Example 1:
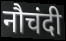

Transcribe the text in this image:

नौचंदी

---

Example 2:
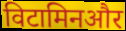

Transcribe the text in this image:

विटामिनऔर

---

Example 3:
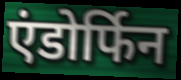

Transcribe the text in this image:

एंडोर्फिन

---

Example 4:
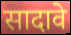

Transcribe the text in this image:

सादावे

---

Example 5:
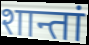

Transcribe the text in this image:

शान्तां